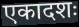
एकादशः